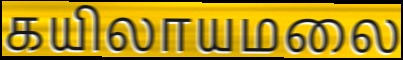
கயிலாயமலை